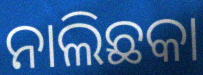
ନାଲିଛକା